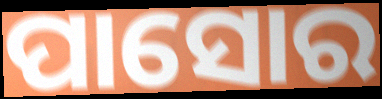
ପାସୋର